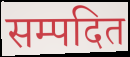
सम्पदित